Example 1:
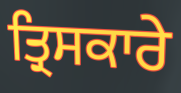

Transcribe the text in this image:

ਤ੍ਰਿਸਕਾਰੇ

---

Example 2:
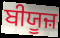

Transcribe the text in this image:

ਬੀਯੂਜ਼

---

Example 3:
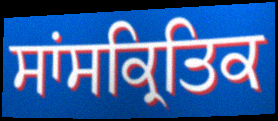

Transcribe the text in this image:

ਸਾਂਸਕ੍ਰਿਤਿਕ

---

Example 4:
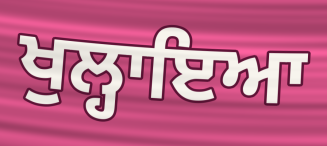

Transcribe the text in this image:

ਖੁਲ੍ਹਾਇਆ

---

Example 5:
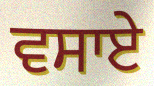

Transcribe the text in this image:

ਵਸਾਏ